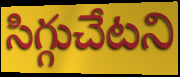
సిగ్గుచేటని